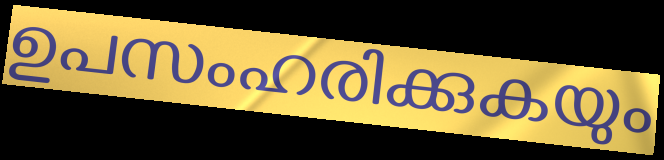
ഉപസംഹരിക്കുകയും